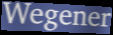
Wegener